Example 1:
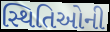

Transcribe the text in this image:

સ્થિતિઓની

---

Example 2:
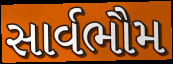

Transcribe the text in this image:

સાર્વભૌમ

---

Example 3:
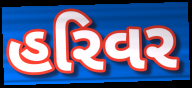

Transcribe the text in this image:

હરિવર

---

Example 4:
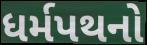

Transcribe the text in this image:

ધર્મપથનો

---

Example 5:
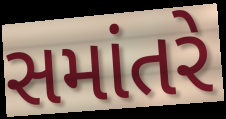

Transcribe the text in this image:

સમાંતરે